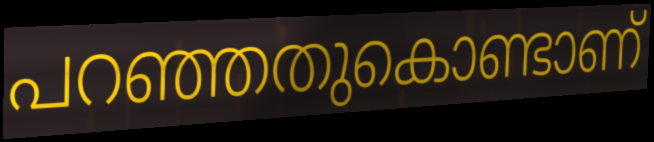
പറഞ്ഞതുകൊണ്ടാണ്